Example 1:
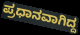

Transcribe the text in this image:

ಪ್ರಧಾನವಾಗಿದ್ದ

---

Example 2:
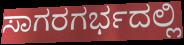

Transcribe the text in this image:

ಸಾಗರಗರ್ಭದಲ್ಲಿ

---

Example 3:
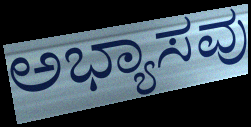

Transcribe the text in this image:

ಅಭ್ಯಾಸವು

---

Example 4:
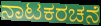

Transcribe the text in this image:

ನಾಟಕರಚನೆ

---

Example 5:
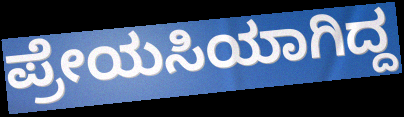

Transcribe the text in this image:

ಪ್ರೇಯಸಿಯಾಗಿದ್ದ